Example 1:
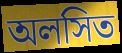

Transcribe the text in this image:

অলসিত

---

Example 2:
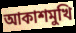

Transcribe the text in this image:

আকাশমুখি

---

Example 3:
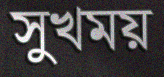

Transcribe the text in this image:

সুখময়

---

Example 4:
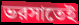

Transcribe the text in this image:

ভরসাতেই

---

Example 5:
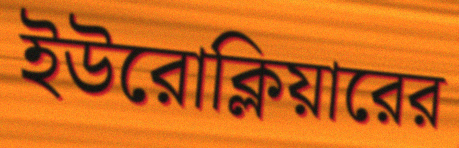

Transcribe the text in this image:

ইউরোক্লিয়ারের